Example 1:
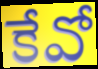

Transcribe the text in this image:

కేవో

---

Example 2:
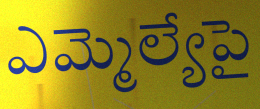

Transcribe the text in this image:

ఎమ్మెల్యేపై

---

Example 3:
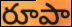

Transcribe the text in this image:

రూపా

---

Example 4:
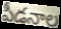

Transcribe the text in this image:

పీడనాల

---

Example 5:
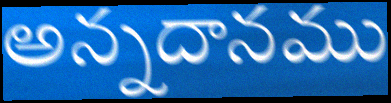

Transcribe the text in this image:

అన్నదానము